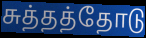
சுத்தத்தோடு